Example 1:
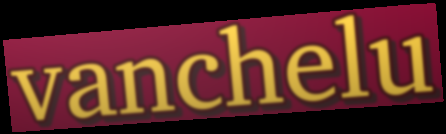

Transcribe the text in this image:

vanchelu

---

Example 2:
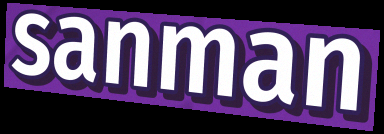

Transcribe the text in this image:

sanman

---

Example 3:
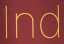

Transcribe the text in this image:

Ind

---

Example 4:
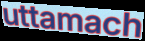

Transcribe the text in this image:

uttamach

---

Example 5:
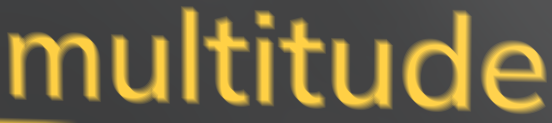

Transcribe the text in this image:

multitude